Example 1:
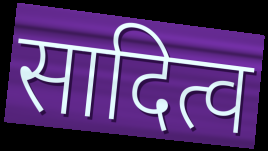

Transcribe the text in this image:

सादित्व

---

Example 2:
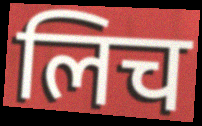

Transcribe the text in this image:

लिच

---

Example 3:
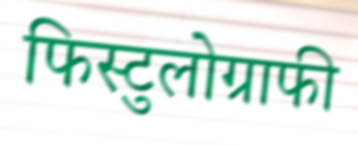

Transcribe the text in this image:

फिस्टुलोग्राफी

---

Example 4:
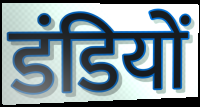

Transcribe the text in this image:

डंडियों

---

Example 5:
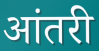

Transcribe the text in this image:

आंतरी